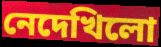
নেদেখিলো